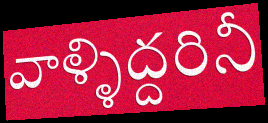
వాళ్ళిద్దరినీ